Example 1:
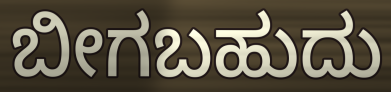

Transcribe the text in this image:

ಬೀಗಬಹುದು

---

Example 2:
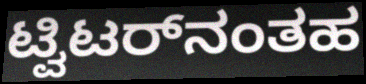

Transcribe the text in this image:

ಟ್ವಿಟರ್‌ನಂತಹ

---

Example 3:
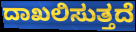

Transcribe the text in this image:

ದಾಖಲಿಸುತ್ತದೆ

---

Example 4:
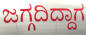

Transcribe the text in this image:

ಜಗ್ಗದಿದ್ದಾಗ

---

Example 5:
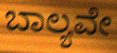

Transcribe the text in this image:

ಬಾಲ್ಯವೇ